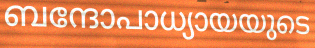
ബന്ദോപാധ്യായയുടെ